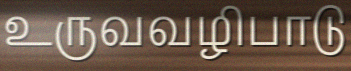
உருவவழிபாடு